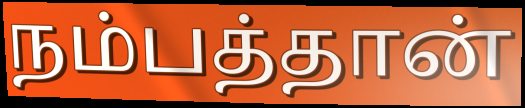
நம்பத்தான்